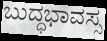
ಬುದ್ಧಭಾವಸ್ಸ